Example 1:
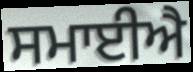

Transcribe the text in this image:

ਸਮਾਈਐ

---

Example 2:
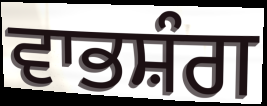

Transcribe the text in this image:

ਵਾਭਸ਼ੰਗ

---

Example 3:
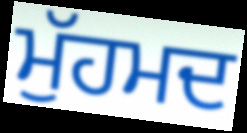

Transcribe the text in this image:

ਮੁੱਹਮਦ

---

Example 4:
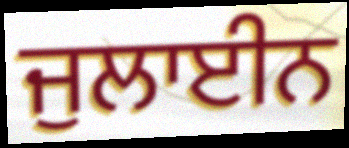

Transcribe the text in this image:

ਜੁਲਾਈਨ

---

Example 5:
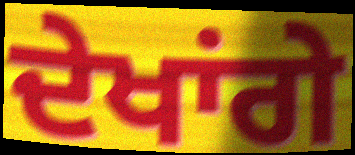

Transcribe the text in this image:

ਦੇਖਾਂਗੇ